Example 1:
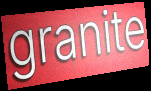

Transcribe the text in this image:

granite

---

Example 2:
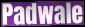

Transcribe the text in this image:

Padwale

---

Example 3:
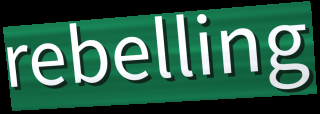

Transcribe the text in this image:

rebelling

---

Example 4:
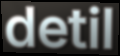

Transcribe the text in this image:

detil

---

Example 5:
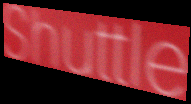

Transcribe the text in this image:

Shuttle